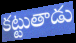
కట్టుతాడు